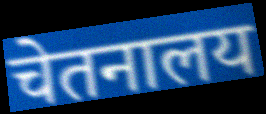
चेतनालय